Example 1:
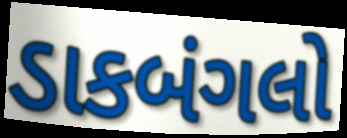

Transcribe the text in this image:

ડાકબંગલો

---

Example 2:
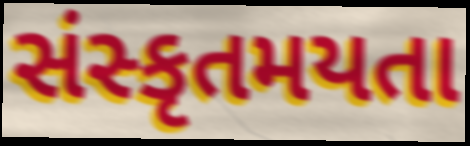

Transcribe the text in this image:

સંસ્કૃતમયતા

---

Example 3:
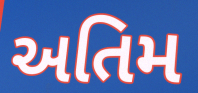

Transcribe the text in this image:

અતિમ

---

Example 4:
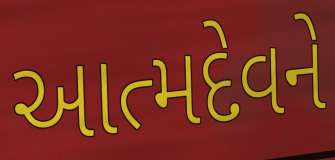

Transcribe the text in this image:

આત્મદેવને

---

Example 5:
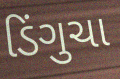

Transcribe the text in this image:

ડિંગુચા